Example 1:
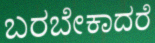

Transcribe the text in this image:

ಬರಬೇಕಾದರೆ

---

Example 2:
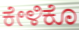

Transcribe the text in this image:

ಕೇಳಿಕೊ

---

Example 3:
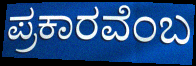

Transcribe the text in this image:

ಪ್ರಕಾರವೆಂಬ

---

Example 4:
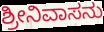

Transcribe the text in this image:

ಶ್ರೀನಿವಾಸನು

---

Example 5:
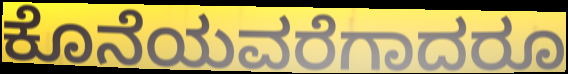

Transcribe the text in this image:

ಕೊನೆಯವರೆಗಾದರೂ